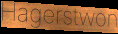
Hagerstwon